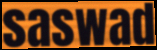
saswad